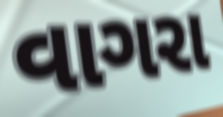
વાગરા